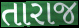
તારાજ